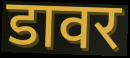
डावर